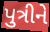
પુત્રીને